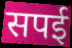
सपई